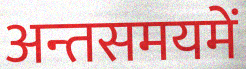
अन्तसमयमें